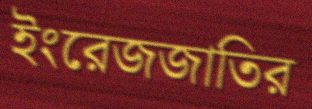
ইংরেজজাতির